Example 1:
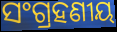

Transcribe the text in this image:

ସଂଗ୍ରହଣୀୟ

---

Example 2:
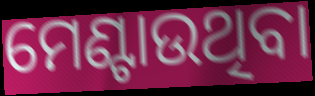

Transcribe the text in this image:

ମେଣ୍ଟାଉଥିବା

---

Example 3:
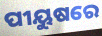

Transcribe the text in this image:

ପୀୟୁଷରେ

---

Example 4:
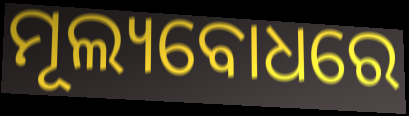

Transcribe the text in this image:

ମୂଲ୍ୟବୋଧରେ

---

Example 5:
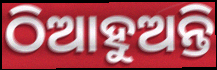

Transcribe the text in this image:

ଠିଆହୁଅନ୍ତି